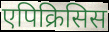
एपिक्रिसिस